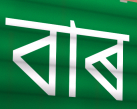
বাৰ